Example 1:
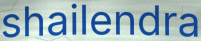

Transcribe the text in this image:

shailendra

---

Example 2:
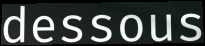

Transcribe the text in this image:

dessous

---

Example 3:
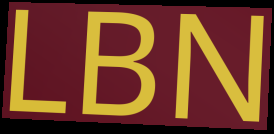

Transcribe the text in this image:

LBN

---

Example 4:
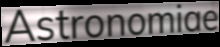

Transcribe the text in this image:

Astronomiae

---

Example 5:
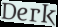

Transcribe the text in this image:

Derk